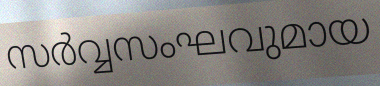
സർവ്വസംഘവുമായ